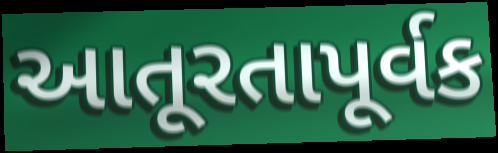
આતૂરતાપૂર્વક